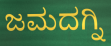
ಜಮದಗ್ನಿ